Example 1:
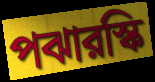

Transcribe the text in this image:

পঝারস্কি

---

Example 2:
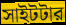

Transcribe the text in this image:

সাইটটার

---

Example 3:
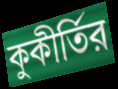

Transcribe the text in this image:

কুকীর্তির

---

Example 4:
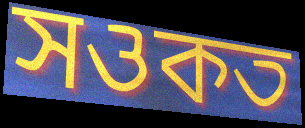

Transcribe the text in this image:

সওকত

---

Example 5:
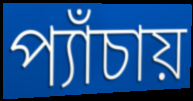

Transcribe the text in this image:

প্যাঁচায়